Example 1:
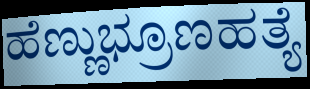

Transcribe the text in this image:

ಹೆಣ್ಣುಭ್ರೂಣಹತ್ಯೆ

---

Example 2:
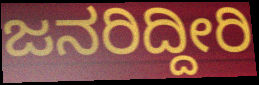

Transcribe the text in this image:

ಜನರಿದ್ದೀರಿ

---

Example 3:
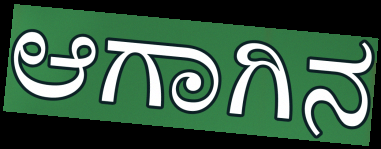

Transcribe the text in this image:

ಆಗಾಗಿನ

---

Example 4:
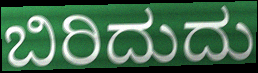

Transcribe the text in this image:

ಬಿರಿದುದು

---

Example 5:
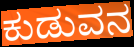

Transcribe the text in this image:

ಕುಡುವನ